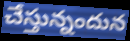
చేస్తున్నందున